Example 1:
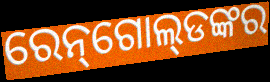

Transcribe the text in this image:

ରେନ୍‌ଗୋଲ୍‌ଡଙ୍କର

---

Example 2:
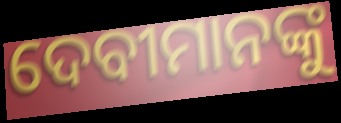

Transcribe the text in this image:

ଦେବୀମାନଙ୍କୁ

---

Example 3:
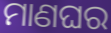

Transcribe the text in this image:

ମାଣଘର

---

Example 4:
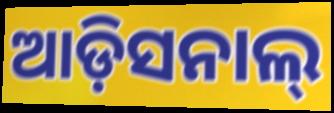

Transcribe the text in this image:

ଆଡ଼ିସନାଲ୍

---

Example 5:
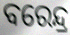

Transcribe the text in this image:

ବରେନ୍ଦ୍ର